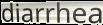
diarrhea